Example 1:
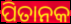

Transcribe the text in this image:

ପିତାନକ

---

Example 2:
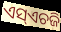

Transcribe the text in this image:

ଏସ୍ଏଚଜି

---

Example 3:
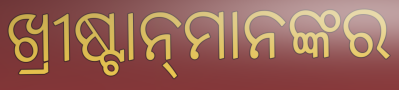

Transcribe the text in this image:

ଖ୍ରୀଷ୍ଟାନ୍‌ମାନଙ୍କର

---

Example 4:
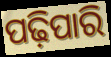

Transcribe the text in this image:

ପଢ଼ିପାରି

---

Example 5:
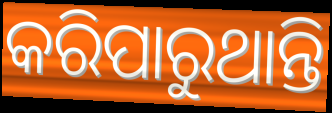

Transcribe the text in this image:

କରିପାରୁଥାନ୍ତି